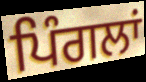
ਪਿੰਗਲਾਂ